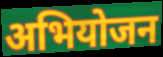
अभियोजन